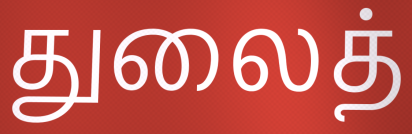
துலைத்